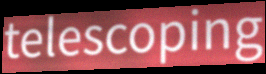
telescoping